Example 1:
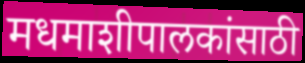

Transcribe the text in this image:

मधमाशीपालकांसाठी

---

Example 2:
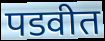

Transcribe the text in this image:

पडवीत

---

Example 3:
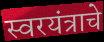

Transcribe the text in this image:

स्वरयंत्राचे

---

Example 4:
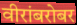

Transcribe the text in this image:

वीरांबरोबर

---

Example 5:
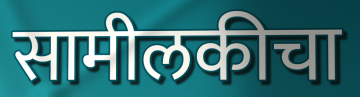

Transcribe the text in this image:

सामीलकीचा